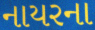
નાયરના